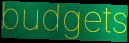
budgets